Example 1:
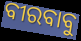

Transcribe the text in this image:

ବୀରବାବୁ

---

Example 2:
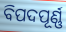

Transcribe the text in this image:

ବିପଦପୂର୍ଣ୍ଣ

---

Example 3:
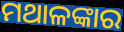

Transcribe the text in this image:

ମଥାଳଙ୍କାର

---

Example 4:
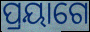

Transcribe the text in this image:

ପ୍ରୟାଗେ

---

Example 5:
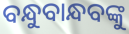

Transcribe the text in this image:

ବନ୍ଧୁବାନ୍ଧବଙ୍କୁ